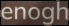
enogh